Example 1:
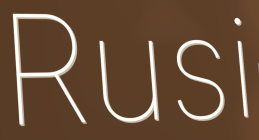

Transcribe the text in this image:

Rusi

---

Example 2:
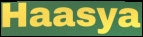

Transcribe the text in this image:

Haasya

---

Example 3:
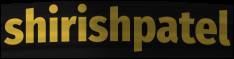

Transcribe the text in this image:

shirishpatel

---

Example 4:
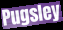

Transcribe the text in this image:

Pugsley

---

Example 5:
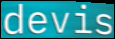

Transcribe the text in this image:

devis